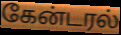
கேன்டரல்